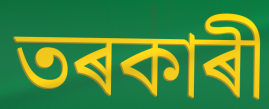
তৰকাৰী